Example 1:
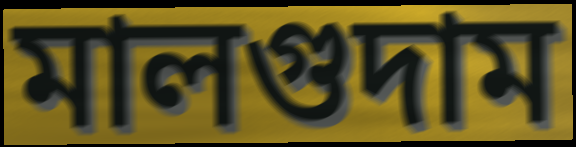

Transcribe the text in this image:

মালগুদাম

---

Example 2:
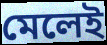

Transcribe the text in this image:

মেলেই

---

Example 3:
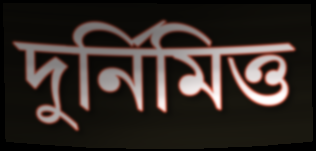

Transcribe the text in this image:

দুর্নিমিত্ত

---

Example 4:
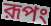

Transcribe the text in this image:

রূপং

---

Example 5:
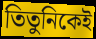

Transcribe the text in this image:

তিতুনিকেই